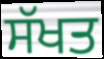
ਸੱਖਤ